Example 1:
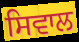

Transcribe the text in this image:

ਸਿਵਾਲ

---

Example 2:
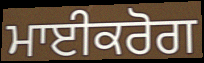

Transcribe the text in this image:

ਮਾਈਕਰੋਗ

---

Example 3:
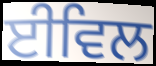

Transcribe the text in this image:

ਈਵਿਲ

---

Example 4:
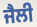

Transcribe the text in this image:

ਜੈਲੀ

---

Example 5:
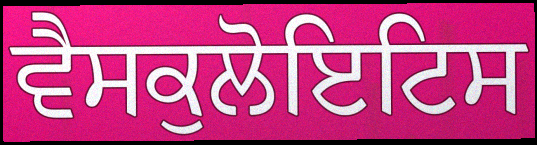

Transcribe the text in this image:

ਵੈਸਕੁਲੋਇਟਿਸ